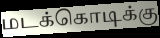
மடக்கொடிக்கு